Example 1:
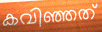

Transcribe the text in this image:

കവിഞ്ഞത്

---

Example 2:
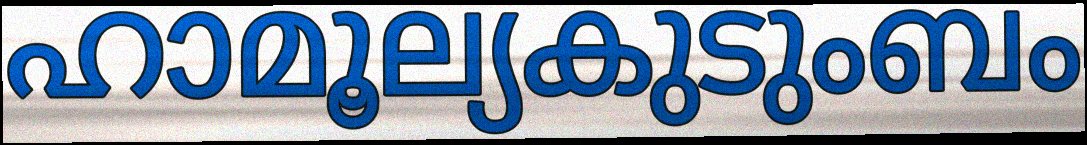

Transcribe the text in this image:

ഹാമൂല്യകുടുംബം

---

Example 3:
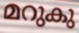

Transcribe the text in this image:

മറുകു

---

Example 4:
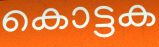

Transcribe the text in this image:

കൊട്ടക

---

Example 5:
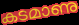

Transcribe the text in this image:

കടമാണു